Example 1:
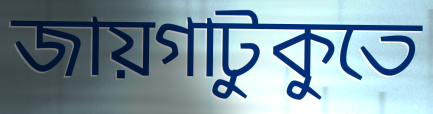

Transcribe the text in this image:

জায়গাটুকুতে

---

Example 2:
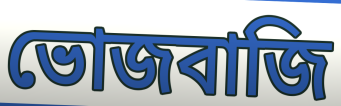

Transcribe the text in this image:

ভোজবাজি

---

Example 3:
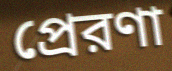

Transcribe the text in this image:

প্রেরণা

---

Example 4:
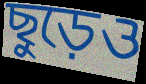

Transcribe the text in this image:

ছুড়েও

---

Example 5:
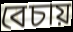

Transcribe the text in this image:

বেচায়